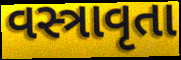
વસ્ત્રાવૃતા